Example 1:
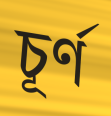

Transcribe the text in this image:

চূর্ণ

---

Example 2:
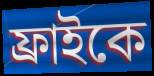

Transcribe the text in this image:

ফ্রাইকে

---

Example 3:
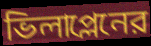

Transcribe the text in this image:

ভিলাপ্লেনের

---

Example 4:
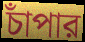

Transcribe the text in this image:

চাঁপার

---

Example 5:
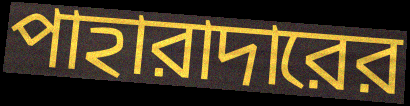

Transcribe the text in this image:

পাহারাদারের